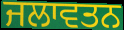
ਜਲਾਵਤਨ